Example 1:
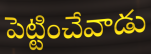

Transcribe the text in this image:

పెట్టించేవాడు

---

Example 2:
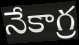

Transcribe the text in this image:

నేకాగ్ర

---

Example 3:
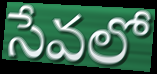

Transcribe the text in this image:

సేవలో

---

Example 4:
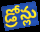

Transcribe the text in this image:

డ్రోన్లు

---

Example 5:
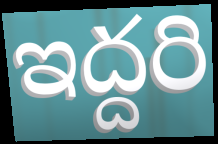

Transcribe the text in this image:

ఇద్దరి